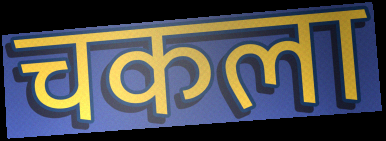
चकला